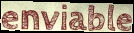
enviable